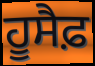
ਹੂਸੈਫ਼